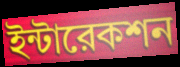
ইন্টারেকশন